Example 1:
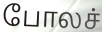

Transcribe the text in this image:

போலச்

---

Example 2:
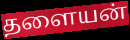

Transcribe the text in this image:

தளையன்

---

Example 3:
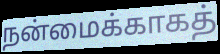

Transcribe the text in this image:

நன்மைக்காகத்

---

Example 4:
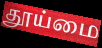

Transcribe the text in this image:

தூய்மை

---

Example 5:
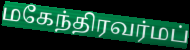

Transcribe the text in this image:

மகேந்திரவர்மப்